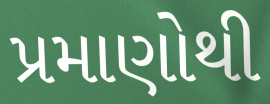
પ્રમાણોથી